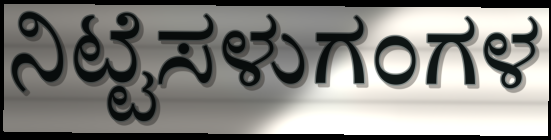
ನಿಟ್ಟೆಸಳುಗಂಗಳ